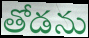
తోడను